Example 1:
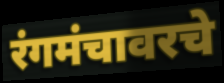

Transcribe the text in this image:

रंगमंचावरचे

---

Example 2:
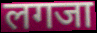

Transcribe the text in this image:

लगजा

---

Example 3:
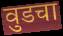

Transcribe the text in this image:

वुडचा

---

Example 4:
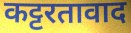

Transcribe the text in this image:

कट्टरतावाद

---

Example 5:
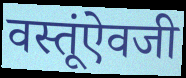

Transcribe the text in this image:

वस्तूंऐवजी